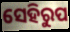
ସେହିରୁପ